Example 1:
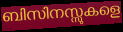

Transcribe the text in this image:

ബിസിനസ്സുകളെ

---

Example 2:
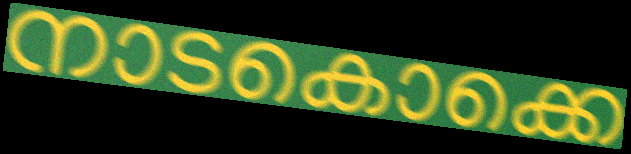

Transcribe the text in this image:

നാടകൊക്കെ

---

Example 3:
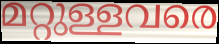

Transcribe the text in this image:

മറ്റുള്ളവരെ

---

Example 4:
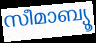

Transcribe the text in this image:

സീമാബ്യൂ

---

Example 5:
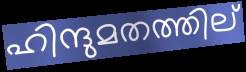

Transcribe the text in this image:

ഹിന്ദുമതത്തില്